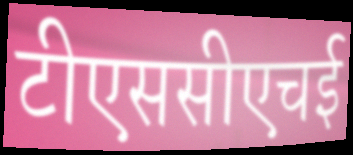
टीएससीएचई